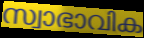
സ്വാഭാവിക